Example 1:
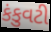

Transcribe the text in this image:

કંકુવટી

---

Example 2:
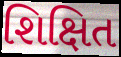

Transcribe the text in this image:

શિક્ષિત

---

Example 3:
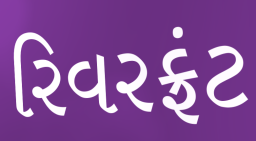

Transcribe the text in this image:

રિવરફ્રંટ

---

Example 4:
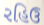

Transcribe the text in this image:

રહિઉ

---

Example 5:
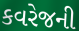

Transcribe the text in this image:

કવરેજની